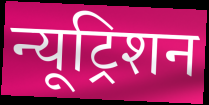
न्यूट्रिशन